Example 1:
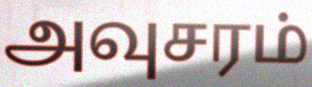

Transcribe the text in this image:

அவுசரம்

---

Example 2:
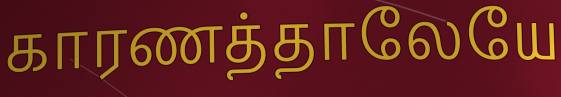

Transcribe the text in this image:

காரணத்தாலேயே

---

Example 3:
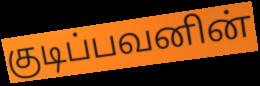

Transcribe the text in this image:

குடிப்பவனின்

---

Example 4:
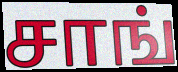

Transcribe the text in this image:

சாங்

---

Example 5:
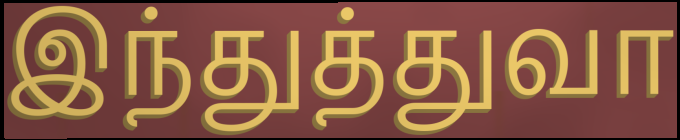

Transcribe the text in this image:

இந்துத்துவா